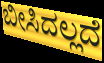
ಬೀಸಿದಲ್ಲದೆ